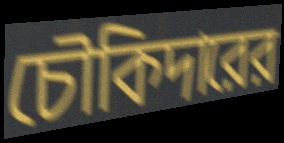
চৌকিদারের